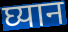
घ्यान